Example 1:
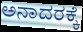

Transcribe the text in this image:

ಅನಾದರಕ್ಕೆ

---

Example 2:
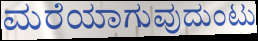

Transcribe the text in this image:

ಮರೆಯಾಗುವುದುಂಟು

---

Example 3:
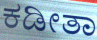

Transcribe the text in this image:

ಕಡೀತಾ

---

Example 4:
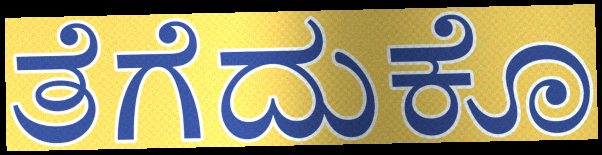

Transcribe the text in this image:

ತೆಗೆದುಕೊ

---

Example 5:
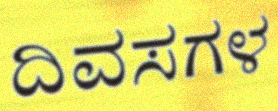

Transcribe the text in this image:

ದಿವಸಗಳ